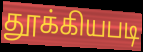
தூக்கியபடி